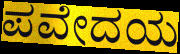
ಪವೇದಯ